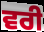
ਵਰੀ